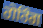
ਗੇਰਿੰਗ